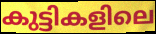
കുട്ടികളിലെ